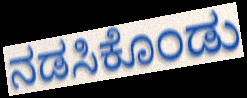
ನಡಸಿಕೊಂಡು